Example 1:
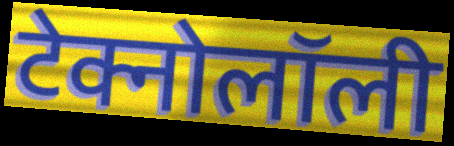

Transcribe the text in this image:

टेक्नोलॉली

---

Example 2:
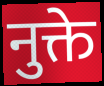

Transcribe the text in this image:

नुक्ते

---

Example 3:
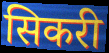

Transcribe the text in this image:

सिकरी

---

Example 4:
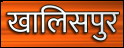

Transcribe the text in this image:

खालिसपुर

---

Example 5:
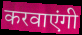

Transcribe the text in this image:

करवाएंगी